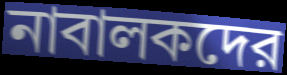
নাবালকদের